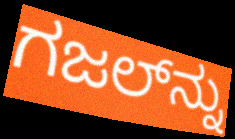
ಗಜಲ್‍ನ್ನು